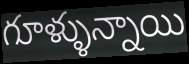
గూళ్ళున్నాయి